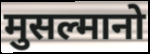
मुसल्मानो